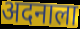
अदनाला